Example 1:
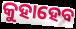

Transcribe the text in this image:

କୁହାହେବ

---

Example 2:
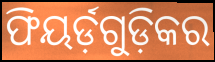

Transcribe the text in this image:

ଫିୟର୍ଡ଼ଗୁଡ଼ିକର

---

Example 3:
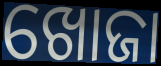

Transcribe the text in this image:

ଖୋଜା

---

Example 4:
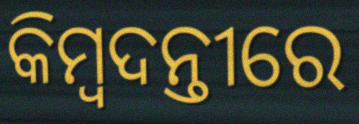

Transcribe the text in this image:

କିମ୍ବଦନ୍ତୀରେ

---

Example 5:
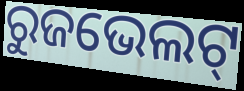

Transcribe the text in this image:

ରୁଜଭେଲଟ୍